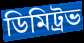
ডিমিট্রভ